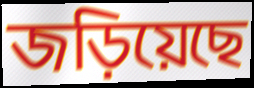
জড়িয়েছে